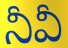
నీవీ